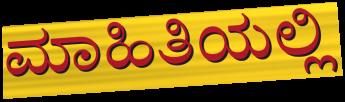
ಮಾಹಿತಿಯಲ್ಲಿ